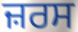
ਜ਼ਰਸ